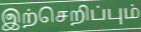
இற்செறிப்பும்